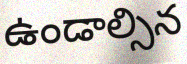
ఉండాల్సిన